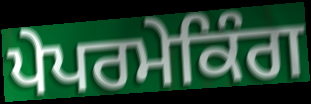
ਪੇਪਰਮੇਕਿੰਗ